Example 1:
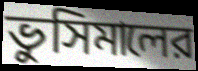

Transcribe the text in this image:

ভুসিমালের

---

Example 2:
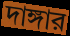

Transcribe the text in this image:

দাঙ্গার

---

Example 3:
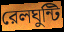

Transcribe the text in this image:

রেলঘুন্টি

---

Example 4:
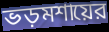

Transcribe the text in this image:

ভড়মশায়ের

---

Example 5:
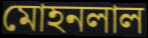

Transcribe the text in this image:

মোহনলাল